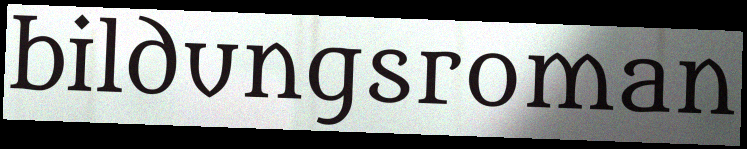
bildungsroman